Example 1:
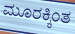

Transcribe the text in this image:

ಮೂರಕ್ಕಿಂತ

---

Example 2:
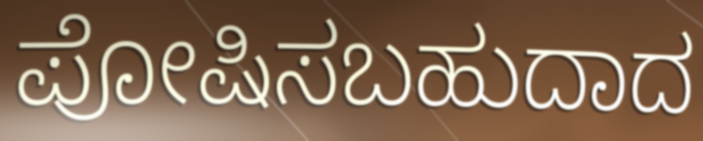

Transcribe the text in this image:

ಪೋಷಿಸಬಹುದಾದ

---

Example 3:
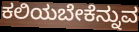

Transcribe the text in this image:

ಕಲಿಯಬೇಕೆನ್ನುವ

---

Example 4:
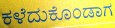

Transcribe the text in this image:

ಕಳೆದುಕೊಂಡಾಗ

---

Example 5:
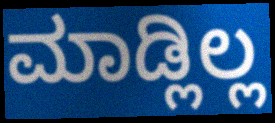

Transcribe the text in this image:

ಮಾಡ್ಲಿಲ್ಲ